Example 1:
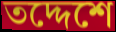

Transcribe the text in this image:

তদ্দেশে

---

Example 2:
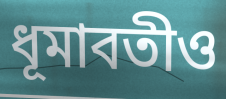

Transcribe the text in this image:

ধূমাবতীও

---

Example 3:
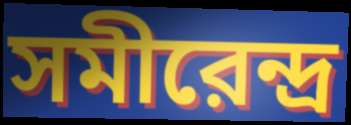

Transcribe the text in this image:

সমীরেন্দ্র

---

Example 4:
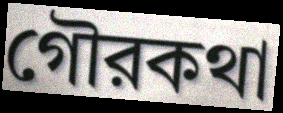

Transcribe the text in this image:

গৌরকথা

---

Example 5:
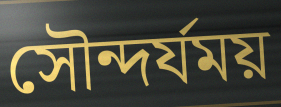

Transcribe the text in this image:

সৌন্দর্যময়